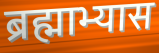
ब्रह्माभ्यास